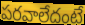
పరవాలేదంటే